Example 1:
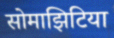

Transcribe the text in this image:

सोमाझिटिया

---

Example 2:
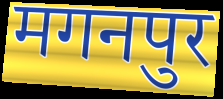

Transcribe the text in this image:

मगनपुर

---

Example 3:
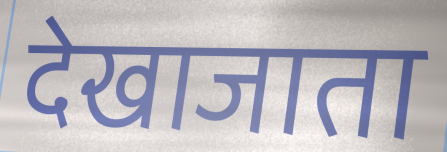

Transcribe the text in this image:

देखाजाता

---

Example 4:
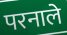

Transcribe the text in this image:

परनाले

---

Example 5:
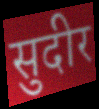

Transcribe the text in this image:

सुदीर